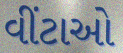
વીંટાઓ